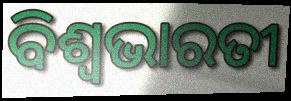
ବିଶ୍ୱଭାରତୀ